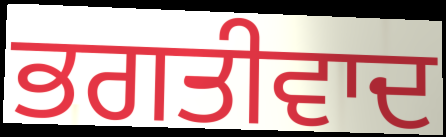
ਭਗਤੀਵਾਦ